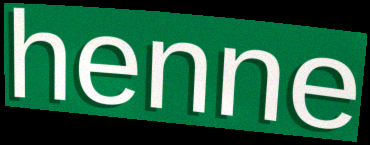
henne